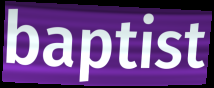
baptist